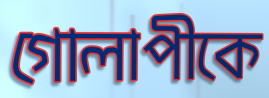
গোলাপীকে